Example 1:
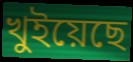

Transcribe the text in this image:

খুইয়েছে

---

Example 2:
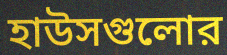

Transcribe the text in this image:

হাউসগুলোর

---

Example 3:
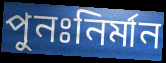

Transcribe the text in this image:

পুনঃনির্মান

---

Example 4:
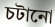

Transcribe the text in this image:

চটানো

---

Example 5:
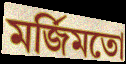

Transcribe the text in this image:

মর্জিমতো